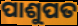
ପାଶୁପତ